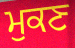
ਮੁਕਣ